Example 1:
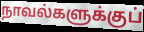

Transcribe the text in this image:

நாவல்களுக்குப்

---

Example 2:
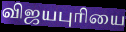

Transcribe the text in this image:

விஜயபுரியை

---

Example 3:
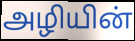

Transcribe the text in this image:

அழியின்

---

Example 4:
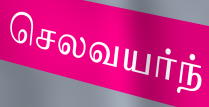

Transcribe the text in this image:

செலவயர்ந்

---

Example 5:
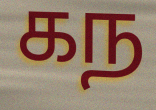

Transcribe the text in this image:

கந